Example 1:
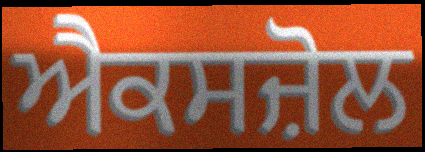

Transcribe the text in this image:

ਐਕਸਜ਼ੋਲ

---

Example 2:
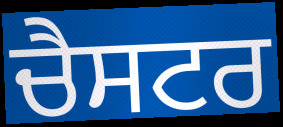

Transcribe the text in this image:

ਚੈਸਟਰ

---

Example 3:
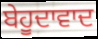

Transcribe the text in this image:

ਬੇਹੂਦਾਵਾਦ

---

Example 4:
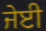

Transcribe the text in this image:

ਜੇਈ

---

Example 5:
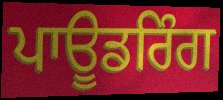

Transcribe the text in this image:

ਪਾਊਡਰਿੰਗ